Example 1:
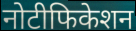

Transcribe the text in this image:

नोटीफिकेशन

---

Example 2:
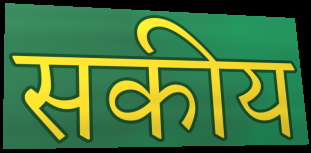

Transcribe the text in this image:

सकीय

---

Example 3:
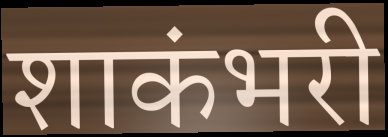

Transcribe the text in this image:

शाकंभरी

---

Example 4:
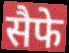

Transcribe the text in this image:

सैफे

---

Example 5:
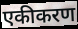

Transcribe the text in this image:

एकीकरण